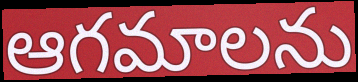
ఆగమాలను